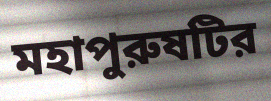
মহাপুরুষটির